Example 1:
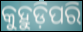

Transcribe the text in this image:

କୁହୁଡ଼ିପରି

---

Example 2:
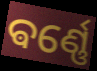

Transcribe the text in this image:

ଵର୍ଣ୍ଣେ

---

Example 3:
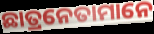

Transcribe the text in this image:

ଛାତ୍ରନେତାମାନେ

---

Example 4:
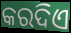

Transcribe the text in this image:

କରଦିଏ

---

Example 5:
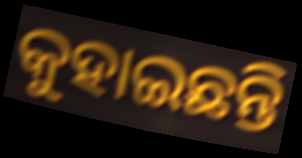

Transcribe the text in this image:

କୁହାଇଛନ୍ତି